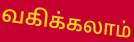
வகிக்கலாம்